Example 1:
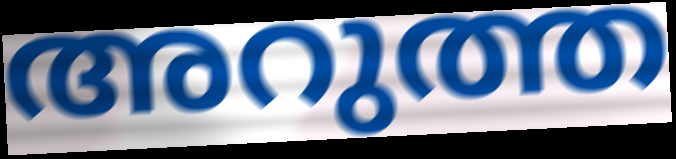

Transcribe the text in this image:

അറുത്ത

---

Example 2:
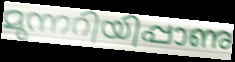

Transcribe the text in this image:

മുന്നറിയിപ്പാണു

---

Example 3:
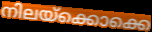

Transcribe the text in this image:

നിലയ്ക്കൊക്കെ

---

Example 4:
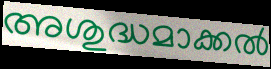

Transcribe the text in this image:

അശുദ്ധമാക്കൽ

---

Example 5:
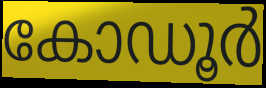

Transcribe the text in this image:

കോഡൂർ